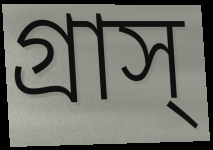
গ্রাস্